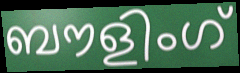
ബൗളിംഗ്